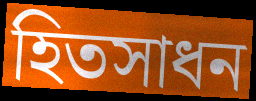
হিতসাধন